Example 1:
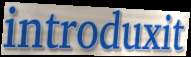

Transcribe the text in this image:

introduxit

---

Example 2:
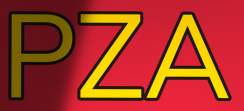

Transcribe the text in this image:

PZA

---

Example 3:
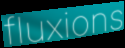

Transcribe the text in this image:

fluxions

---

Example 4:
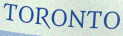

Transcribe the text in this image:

TORONTO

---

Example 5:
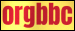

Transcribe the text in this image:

orgbbc